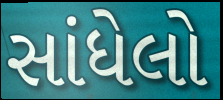
સાંધેલો